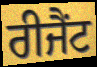
ਰੀਜੈਂਟ